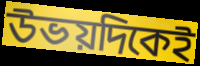
উভয়দিকেই